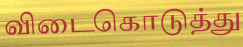
விடைகொடுத்து